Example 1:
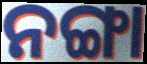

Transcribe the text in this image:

ନଙ୍ଗା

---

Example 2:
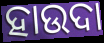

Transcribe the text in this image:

ହାଉଦା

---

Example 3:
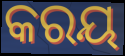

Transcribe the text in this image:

କରୟ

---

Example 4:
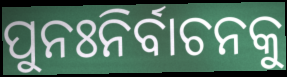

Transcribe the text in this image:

ପୁନଃନିର୍ବାଚନକୁ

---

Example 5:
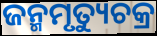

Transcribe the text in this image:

ଜନ୍ମମୃତ୍ୟୁଚକ୍ର